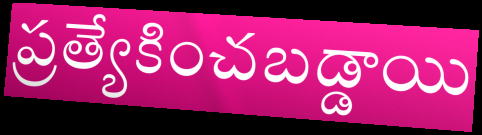
ప్రత్యేకించబడ్డాయి